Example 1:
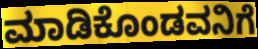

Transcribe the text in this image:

ಮಾಡಿಕೊಂಡವನಿಗೆ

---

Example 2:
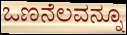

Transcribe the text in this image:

ಒಣನೆಲವನ್ನೂ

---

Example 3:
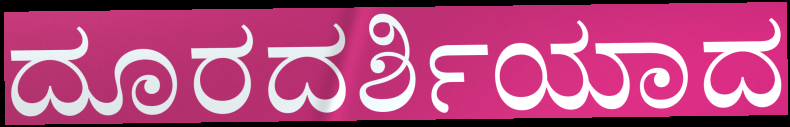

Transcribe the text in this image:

ದೂರದರ್ಶಿಯಾದ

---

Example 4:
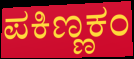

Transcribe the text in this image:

ಪಕಿಣ್ಣಕಂ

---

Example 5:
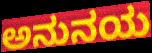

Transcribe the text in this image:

ಅನುನಯ